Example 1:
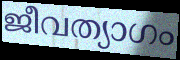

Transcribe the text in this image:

ജീവത്യാഗം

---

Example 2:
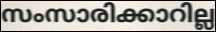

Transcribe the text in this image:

സംസാരിക്കാറില്ല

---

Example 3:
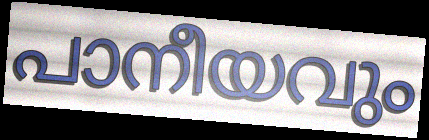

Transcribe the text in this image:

പാനീയവും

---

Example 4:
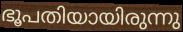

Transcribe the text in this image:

ഭൂപതിയായിരുന്നു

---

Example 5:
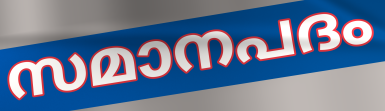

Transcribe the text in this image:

സമാനപദം